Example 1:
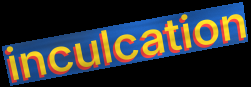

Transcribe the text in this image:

inculcation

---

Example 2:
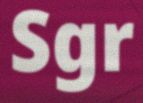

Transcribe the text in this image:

Sgr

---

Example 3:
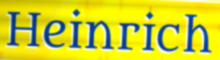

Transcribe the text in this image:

Heinrich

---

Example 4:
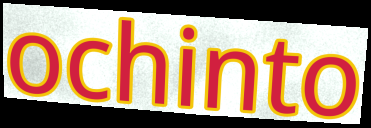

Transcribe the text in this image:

ochinto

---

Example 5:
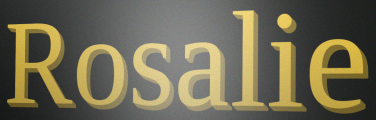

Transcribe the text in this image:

Rosalie